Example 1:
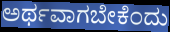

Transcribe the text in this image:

ಅರ್ಥವಾಗಬೇಕೆಂದು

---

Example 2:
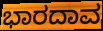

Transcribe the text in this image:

ಭಾರದಾವ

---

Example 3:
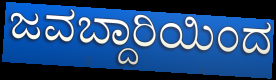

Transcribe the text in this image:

ಜವಬ್ದಾರಿಯಿಂದ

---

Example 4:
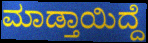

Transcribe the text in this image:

ಮಾಡ್ತಾಯಿದ್ದೆ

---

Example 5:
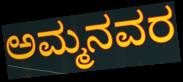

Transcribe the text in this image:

ಅಮ್ಮನವರ